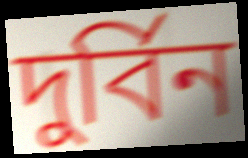
দুর্বিন